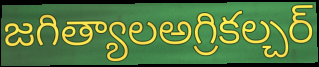
జగిత్యాలఅగ్రికల్చర్